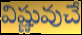
విష్ణువుచే